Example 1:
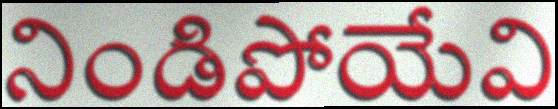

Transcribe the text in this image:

నిండిపోయేవి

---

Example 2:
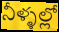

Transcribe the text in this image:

నీళ్ళల్లో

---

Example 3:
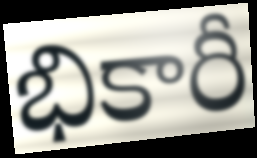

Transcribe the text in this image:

భికారీ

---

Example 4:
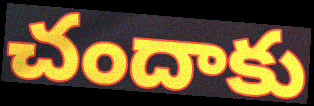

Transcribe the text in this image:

చందాకు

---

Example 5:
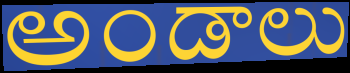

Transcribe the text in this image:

అండాలు